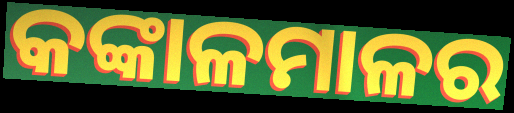
କଙ୍କାଳମାଳର